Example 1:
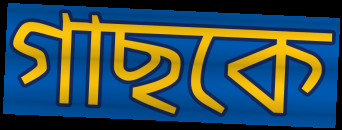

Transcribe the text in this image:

গাছকে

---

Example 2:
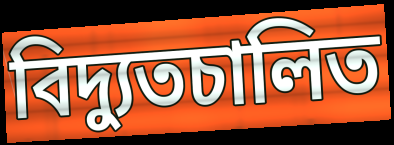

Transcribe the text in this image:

বিদ্যুতচালিত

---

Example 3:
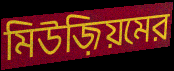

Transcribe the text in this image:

মিউজ়িয়মের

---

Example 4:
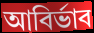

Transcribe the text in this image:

আবির্ভাব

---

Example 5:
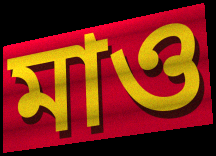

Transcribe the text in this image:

মাও